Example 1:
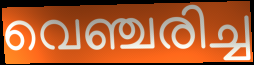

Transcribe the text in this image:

വെഞ്ചരിച്ച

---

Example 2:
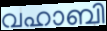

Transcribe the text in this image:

വഹാബി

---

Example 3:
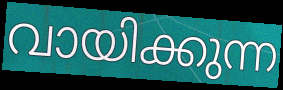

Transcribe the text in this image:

വായിക്കുന്ന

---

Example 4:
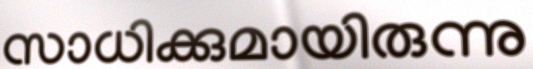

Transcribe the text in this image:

സാധിക്കുമായിരുന്നു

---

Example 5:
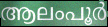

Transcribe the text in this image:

ആലംപൂർ